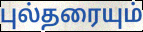
புல்தரையும்